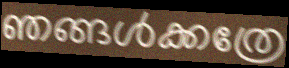
ഞങ്ങൾക്കത്രേ